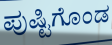
ಪುಷ್ಟಿಗೊಂಡ